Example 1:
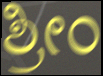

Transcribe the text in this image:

ಶ್ರೀಂ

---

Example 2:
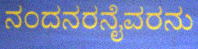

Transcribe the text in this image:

ನಂದನರನೈವರನು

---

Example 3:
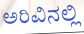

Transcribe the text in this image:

ಅರಿವಿನಲ್ಲಿ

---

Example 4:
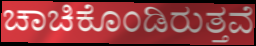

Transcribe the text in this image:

ಚಾಚಿಕೊಂಡಿರುತ್ತವೆ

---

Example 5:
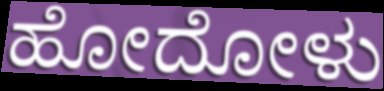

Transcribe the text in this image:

ಹೋದೋಳು